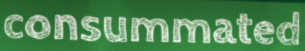
consummated